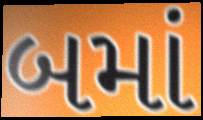
બમાં